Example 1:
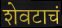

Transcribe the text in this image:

शेवटाचं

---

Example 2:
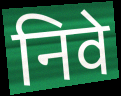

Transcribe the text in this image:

निवे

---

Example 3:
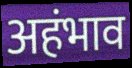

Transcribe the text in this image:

अहंभाव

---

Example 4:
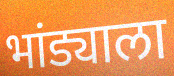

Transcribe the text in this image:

भांड्याला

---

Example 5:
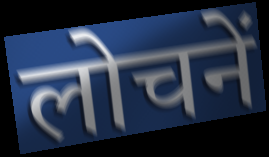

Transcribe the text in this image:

लोचनें